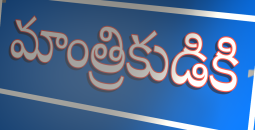
మాంత్రికుడికి